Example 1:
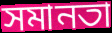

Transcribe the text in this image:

সমানতা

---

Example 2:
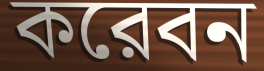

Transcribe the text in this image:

করেবন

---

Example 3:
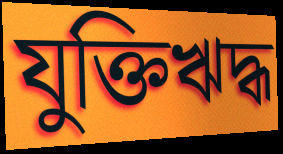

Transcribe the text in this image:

যুক্তিঋদ্ধ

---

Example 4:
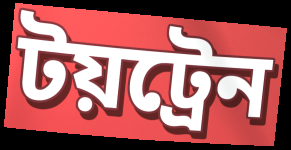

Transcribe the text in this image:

টয়ট্রেন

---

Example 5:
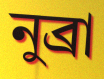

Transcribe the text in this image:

নুব্রা